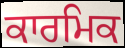
ਕਾਰਮਿਕ